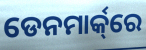
ଡେନମାର୍କ୍‌ରେ